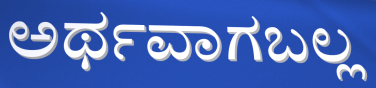
ಅರ್ಥವಾಗಬಲ್ಲ